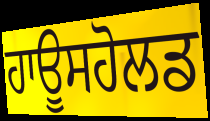
ਹਾਊਸਹੋਲਡ